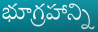
భూగ్రహాన్ని